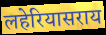
लहेरियासराय